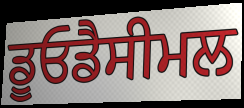
ਡੂਓਡੈਸੀਮਲ